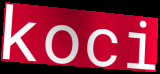
koci